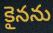
కైనను